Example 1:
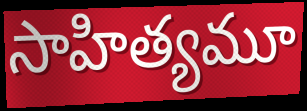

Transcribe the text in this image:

సాహిత్యమూ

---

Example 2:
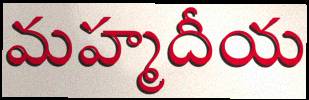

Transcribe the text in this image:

మహ్మదీయ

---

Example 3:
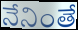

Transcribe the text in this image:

నేనింతే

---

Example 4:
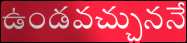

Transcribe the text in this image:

ఉండవచ్చుననే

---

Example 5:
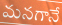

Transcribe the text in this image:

మనగానే